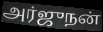
அர்ஜுநன்